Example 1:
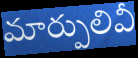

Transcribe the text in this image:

మార్పులివీ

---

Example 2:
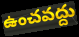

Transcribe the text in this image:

ఉంచవద్దు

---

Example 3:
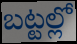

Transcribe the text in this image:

బట్టల్లో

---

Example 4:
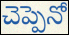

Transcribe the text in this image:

చెప్పెనో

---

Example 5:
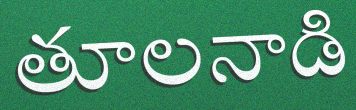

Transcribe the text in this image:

తూలనాడి